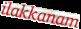
ilakkanam